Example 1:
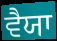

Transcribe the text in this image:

ਵੈਯਾ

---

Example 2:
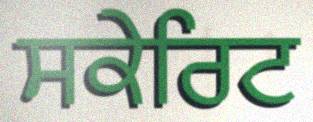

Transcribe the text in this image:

ਸਕੇਰਿਟ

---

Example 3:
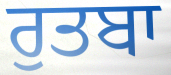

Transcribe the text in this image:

ਰੁਤਬਾ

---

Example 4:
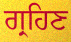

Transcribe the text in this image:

ਗ੍ਰਹਿਣ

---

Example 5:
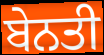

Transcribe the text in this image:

ਬੇਨਤੀ